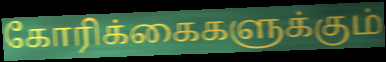
கோரிக்கைகளுக்கும்